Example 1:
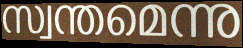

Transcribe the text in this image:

സ്വന്തമെന്നു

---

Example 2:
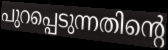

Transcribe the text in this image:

പുറപ്പെടുന്നതിന്റെ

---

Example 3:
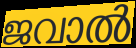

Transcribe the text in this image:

ജവാൽ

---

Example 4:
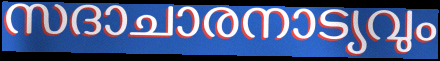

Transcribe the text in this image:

സദാചാരനാട്യവും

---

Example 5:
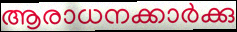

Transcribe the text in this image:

ആരാധനക്കാർക്കു